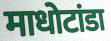
माधोटांडा